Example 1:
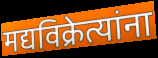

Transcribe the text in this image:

मद्यविक्रेत्यांना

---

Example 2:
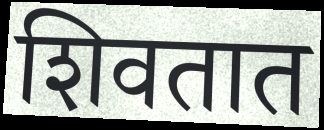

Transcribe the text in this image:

शिवतात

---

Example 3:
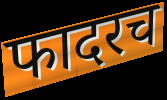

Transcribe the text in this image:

फादरच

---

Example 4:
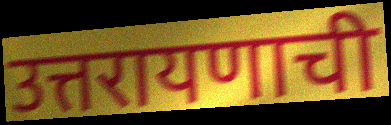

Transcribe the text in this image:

उत्तरायणाची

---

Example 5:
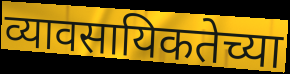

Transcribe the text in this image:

व्यावसायिकतेच्या